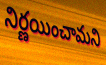
నిర్ణయించామని